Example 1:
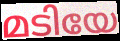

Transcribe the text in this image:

മടിയേ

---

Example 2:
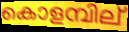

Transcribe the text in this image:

കൊളമ്പില്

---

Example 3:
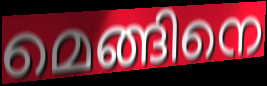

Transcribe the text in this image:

മെങ്ങിനെ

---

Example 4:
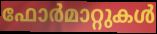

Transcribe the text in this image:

ഫോർമാറ്റുകൾ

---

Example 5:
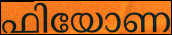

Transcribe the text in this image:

ഫിയോണ